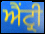
ਐਂਟ੍ਰੀ